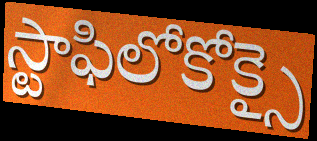
స్టాఫిలోకోక్సై